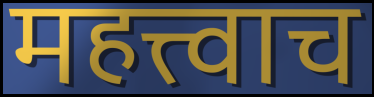
महत्त्वाच